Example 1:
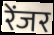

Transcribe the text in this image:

रेंजर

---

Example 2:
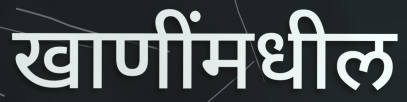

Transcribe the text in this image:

खाणींमधील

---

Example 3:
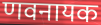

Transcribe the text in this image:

णवनायक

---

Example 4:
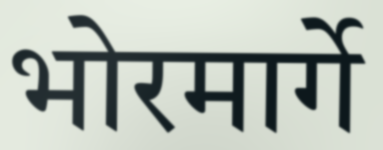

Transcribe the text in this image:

भोरमार्गे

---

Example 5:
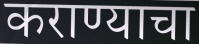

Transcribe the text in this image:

कराण्याचा